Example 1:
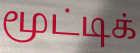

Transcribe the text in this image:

மூட்டிக்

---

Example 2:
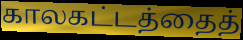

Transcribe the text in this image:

காலகட்டத்தைத்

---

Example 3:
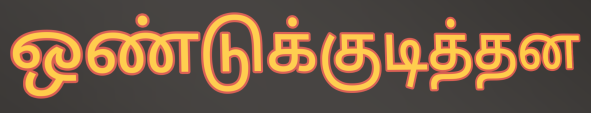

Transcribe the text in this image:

ஒண்டுக்குடித்தன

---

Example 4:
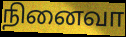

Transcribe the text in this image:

நினைவா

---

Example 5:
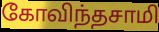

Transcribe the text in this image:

கோவிந்தசாமி